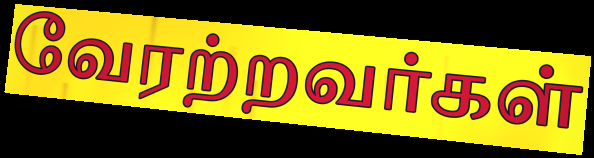
வேரற்றவர்கள்